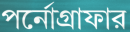
পর্নোগ্রাফার